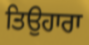
ਤਿਉਹਾਰਾ